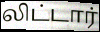
லிட்டார்